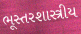
ભૂસ્તરશાસ્ત્રીય